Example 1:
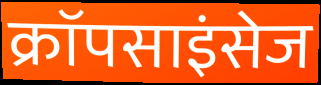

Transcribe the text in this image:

क्रॉपसाइंसेज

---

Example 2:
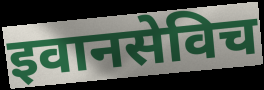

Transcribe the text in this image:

इवानसेविच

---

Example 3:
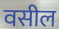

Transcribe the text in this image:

वसील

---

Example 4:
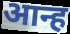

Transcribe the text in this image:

आन्ह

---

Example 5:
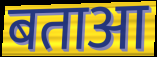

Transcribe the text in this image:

बताआ